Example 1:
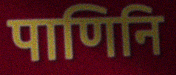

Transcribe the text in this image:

पाणिनि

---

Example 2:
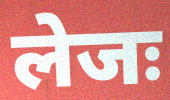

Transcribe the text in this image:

लेजः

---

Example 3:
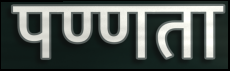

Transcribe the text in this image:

पण्णता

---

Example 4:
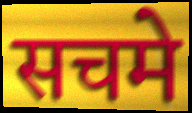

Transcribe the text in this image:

सचमे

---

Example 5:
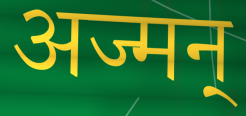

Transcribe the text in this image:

अज्मन्